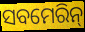
ସବମେରିନ୍